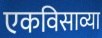
एकविसाव्या